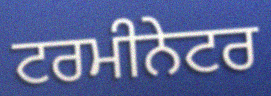
ਟਰਮੀਨੇਟਰ